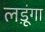
लड़ूंगा